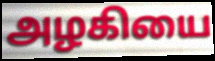
அழகியை